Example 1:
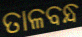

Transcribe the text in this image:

ତାଳବନ୍ଧ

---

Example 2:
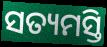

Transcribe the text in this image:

ସତ୍ୟମସ୍ତି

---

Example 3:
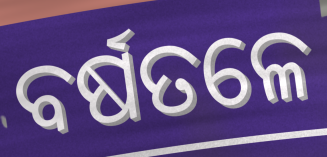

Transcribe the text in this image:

ବର୍ଷତଳେ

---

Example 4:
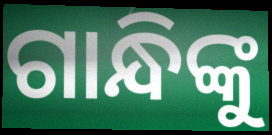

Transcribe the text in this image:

ଗାନ୍ଧିଙ୍କୁ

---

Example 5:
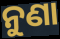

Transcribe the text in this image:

ନୁଣା